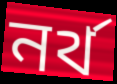
নৰ্থ